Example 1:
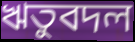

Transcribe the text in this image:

ঋতুবদল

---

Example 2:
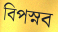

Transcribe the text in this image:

বিপস্নব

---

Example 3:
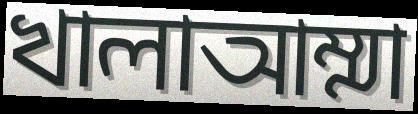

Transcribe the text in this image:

খালাআম্মা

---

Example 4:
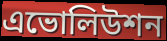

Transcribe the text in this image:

এভোলিউশন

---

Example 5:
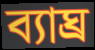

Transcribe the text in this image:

ব্যাঘ্র